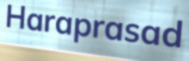
Haraprasad